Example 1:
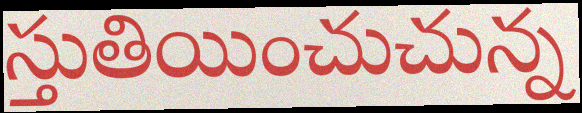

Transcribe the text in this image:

స్తుతియించుచున్న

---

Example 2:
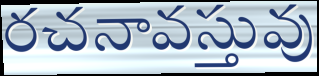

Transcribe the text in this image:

రచనావస్తువు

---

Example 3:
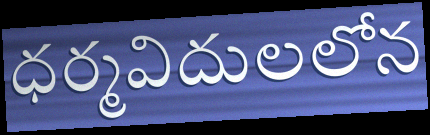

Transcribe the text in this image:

ధర్మవిదులలోన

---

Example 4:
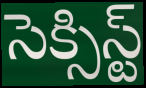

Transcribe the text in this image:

సెక్సిస్ట్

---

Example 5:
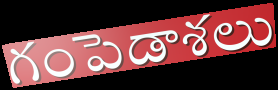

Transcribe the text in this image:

గంపెడాశలు